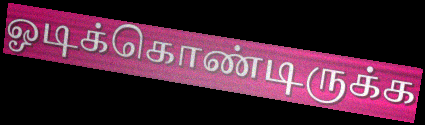
ஓடிக்கொண்டிருக்க